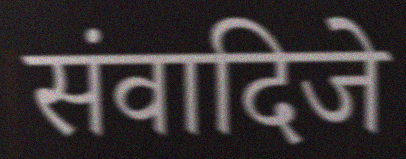
संवादिजे